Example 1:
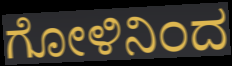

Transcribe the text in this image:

ಗೋಳಿನಿಂದ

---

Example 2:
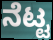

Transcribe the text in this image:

ನೆಟ್ಟ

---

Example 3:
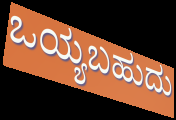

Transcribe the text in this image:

ಒಯ್ಯಬಹುದು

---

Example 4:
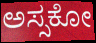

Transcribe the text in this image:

ಅಸ್ಸಕೋ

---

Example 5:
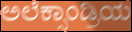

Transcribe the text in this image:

ಅಲೆಕ್ಸಾಂಡ್ರಿಯ